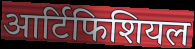
आर्टिफिशियल